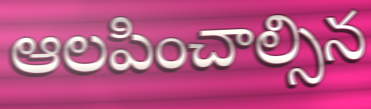
ఆలపించాల్సిన